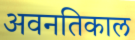
अवनतिकाल